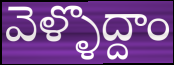
వెళ్ళొద్దాం